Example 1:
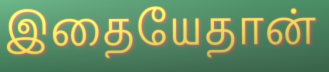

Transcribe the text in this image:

இதையேதான்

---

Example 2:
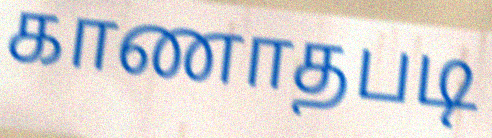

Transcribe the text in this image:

காணாதபடி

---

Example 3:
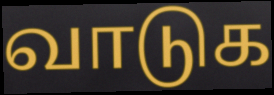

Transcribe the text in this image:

வாடுக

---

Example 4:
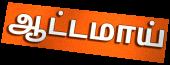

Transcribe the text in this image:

ஆட்டமாய்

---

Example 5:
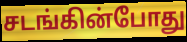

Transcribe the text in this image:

சடங்கின்போது